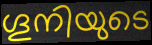
ഗൂനിയുടെ